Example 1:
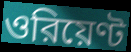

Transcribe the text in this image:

ওরিয়েণ্ট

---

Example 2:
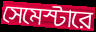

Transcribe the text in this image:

সেমেস্টারে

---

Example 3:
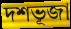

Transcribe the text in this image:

দশভূজা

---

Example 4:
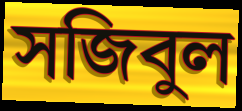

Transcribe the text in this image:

সজিবুল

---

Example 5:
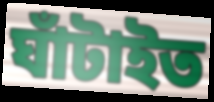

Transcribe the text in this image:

ঘাঁটাইত